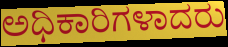
ಅಧಿಕಾರಿಗಳಾದರು